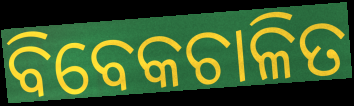
ବିବେକଚାଳିତ